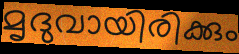
മൃദുവായിരിക്കും